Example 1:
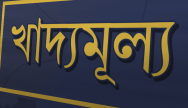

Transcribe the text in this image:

খাদ্যমূল্য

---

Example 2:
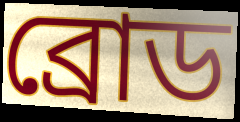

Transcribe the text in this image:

ব্রোড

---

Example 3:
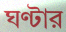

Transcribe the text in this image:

ঘণ্টার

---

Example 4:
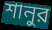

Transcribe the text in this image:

শানুর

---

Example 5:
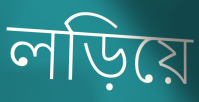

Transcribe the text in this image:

লড়িয়ে